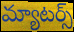
మ్యాటర్స్